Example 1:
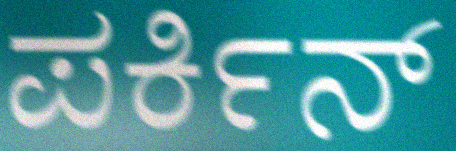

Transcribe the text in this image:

ಪರ್ಕಿನ್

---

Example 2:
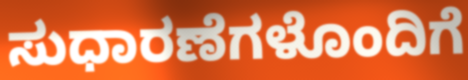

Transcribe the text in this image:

ಸುಧಾರಣೆಗಳೊಂದಿಗೆ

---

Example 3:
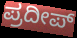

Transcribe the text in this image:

ಪ್ರದೀಪ್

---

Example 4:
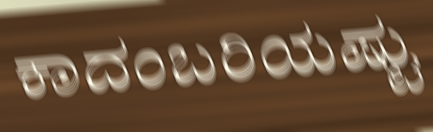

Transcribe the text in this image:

ಕಾದಂಬರಿಯಷ್ಟು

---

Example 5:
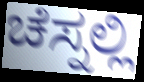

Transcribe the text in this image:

ಚೆಸ್ನಲ್ಲಿ